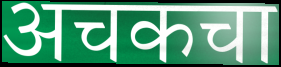
अचकचा